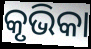
କୃଭିକା